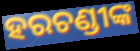
ହରଚଣ୍ଡୀଙ୍କ